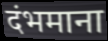
दंभमाना